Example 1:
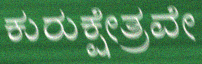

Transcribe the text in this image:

ಕುರುಕ್ಷೇತ್ರವೇ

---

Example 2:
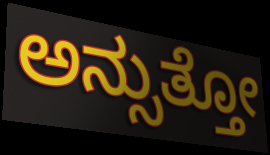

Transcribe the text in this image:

ಅನ್ಸುತ್ತೋ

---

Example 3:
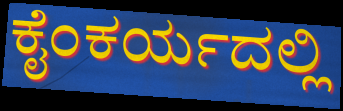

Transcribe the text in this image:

ಕೈಂಕರ್ಯದಲ್ಲಿ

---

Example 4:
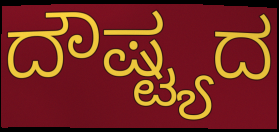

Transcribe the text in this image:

ದೌಷ್ಟ್ಯದ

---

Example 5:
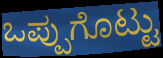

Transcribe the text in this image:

ಒಪ್ಪುಗೊಟ್ಟು